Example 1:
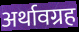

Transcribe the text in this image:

अर्थावग्रह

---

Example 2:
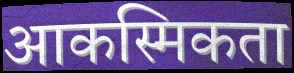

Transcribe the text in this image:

आकस्मिकता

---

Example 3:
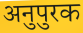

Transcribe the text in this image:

अनुपुरक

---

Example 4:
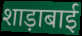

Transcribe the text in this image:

शाड़ाबाई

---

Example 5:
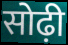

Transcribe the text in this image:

सोढ़ी